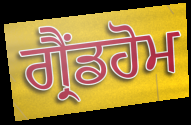
ਗ੍ਰੈਂਡਹੋਮ